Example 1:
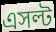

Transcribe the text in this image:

এসল্ট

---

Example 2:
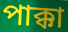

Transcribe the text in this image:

পাক্কা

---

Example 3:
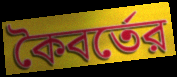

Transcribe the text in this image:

কৈবর্তের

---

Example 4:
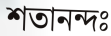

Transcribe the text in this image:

শতানন্দঃ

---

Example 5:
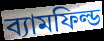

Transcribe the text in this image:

ব্যামফিল্ড